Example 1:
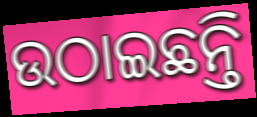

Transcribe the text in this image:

ଉଠାଇଛନ୍ତି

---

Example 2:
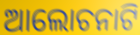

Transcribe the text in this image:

ଆଲୋଚନାଟି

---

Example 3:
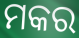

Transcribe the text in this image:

ମକର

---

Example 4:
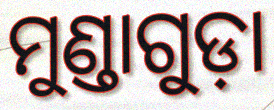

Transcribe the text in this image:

ମୁଣ୍ଡାଗୁଡ଼ା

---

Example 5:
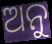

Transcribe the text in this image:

ଅନୁ